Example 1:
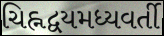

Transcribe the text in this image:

ચિહ્નદ્વયમધ્યવર્તી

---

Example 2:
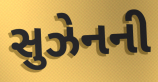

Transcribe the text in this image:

સુઝેનની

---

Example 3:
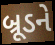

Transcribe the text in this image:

બ્રૂડને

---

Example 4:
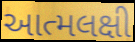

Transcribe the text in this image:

આત્મલક્ષી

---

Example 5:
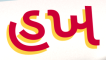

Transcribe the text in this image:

હખ